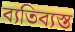
ব্যতিব্যস্ত